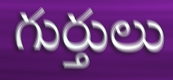
గుర్తులు